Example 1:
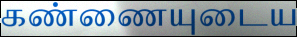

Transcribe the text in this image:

கண்ணையுடைய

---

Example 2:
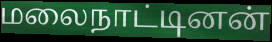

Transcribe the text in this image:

மலைநாட்டினன்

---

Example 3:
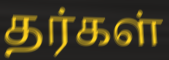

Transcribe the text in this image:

தர்கள்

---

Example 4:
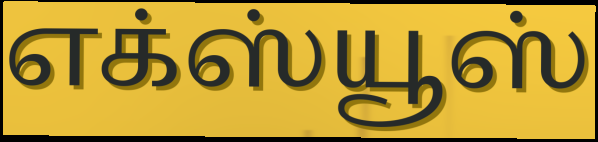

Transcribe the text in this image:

எக்ஸ்யூஸ்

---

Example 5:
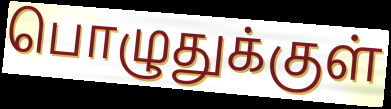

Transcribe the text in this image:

பொழுதுக்குள்